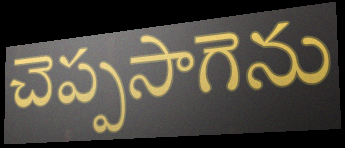
చెప్పసాగెను